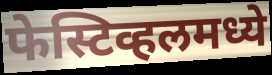
फेस्टिव्हलमध्ये